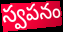
స్వపనం